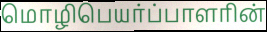
மொழிபெயர்ப்பாளரின்